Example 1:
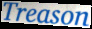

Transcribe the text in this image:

Treason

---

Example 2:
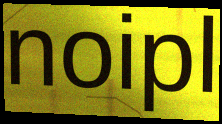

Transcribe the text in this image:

noipl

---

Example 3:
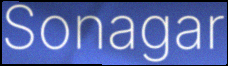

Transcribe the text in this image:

Sonagar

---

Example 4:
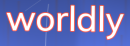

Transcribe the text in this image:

worldly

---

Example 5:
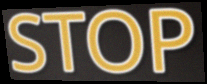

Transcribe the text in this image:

STOP